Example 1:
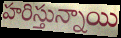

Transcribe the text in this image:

హరిస్తున్నాయి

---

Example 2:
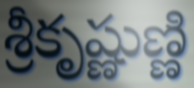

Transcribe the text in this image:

శ్రీకృష్ణుణ్ణి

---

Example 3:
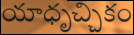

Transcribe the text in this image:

యాధృచ్చికం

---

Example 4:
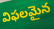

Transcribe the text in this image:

విఫలమైన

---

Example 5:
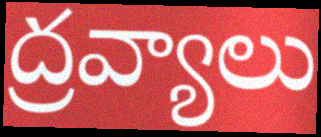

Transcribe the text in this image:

ద్రవ్యాలు